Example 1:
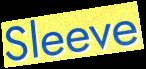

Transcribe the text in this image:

Sleeve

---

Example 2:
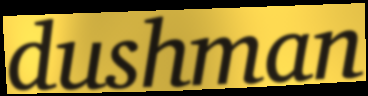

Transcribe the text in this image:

dushman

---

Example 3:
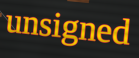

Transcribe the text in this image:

unsigned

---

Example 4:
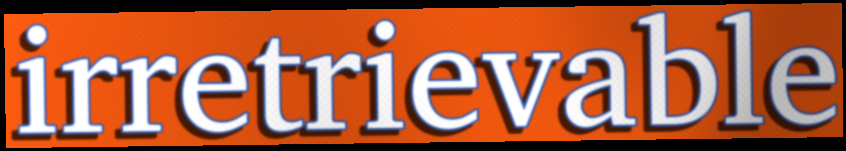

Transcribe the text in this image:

irretrievable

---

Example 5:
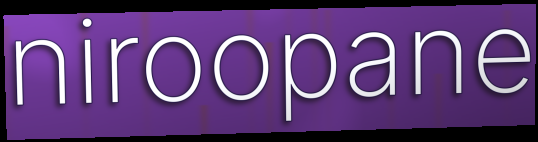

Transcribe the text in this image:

niroopane